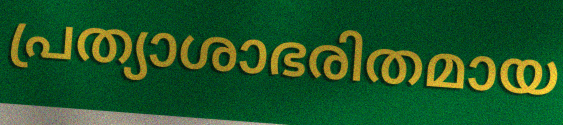
പ്രത്യാശാഭരിതമായ